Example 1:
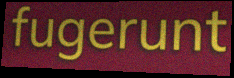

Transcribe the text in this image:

fugerunt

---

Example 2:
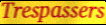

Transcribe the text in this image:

Trespassers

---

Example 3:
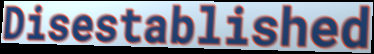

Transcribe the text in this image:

Disestablished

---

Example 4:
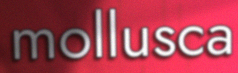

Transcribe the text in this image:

mollusca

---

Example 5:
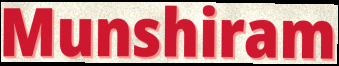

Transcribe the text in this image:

Munshiram